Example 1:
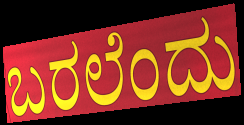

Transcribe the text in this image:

ಬರಲೆಂದು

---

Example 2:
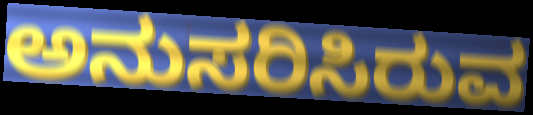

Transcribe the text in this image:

ಅನುಸರಿಸಿರುವ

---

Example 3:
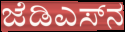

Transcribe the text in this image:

ಜೆಡಿಎಸ್‌ನ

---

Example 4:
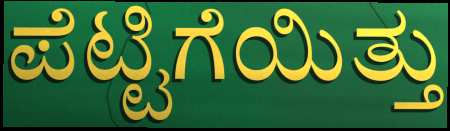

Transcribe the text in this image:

ಪೆಟ್ಟಿಗೆಯಿತ್ತು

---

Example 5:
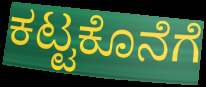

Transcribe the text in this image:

ಕಟ್ಟಕೊನೆಗೆ